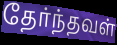
தேர்ந்தவள்